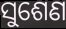
ସୁଶେଣ